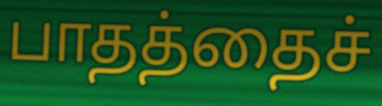
பாதத்தைச்